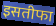
इसतीफा